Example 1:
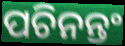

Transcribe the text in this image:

ପଚିନନ୍ତଂ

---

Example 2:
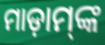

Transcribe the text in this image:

ମାଡ଼ାମ୍‌ଙ୍କ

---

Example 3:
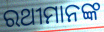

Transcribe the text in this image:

ରଥୀମାନଙ୍କ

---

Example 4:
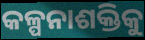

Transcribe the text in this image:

କଳ୍ପନାଶକ୍ତିକୁ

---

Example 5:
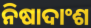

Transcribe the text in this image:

ନିଷାଦାଂଶ